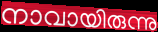
നാവായിരുന്നു